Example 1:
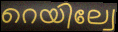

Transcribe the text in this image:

റെയില്വേ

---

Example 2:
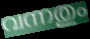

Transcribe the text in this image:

വന്നതും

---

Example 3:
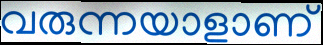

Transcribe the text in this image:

വരുന്നയാളാണ്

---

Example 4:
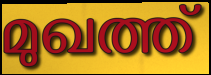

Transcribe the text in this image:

മുഖത്ത്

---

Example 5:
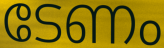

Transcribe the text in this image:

ടേണം